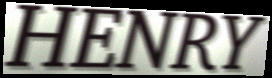
HENRY